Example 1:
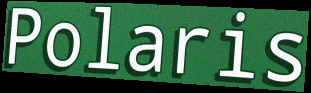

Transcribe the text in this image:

Polaris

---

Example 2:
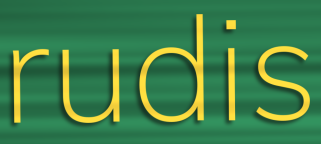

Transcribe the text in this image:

rudis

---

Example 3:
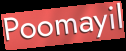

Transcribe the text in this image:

Poomayil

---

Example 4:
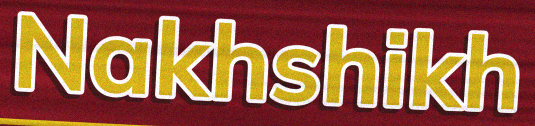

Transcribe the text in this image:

Nakhshikh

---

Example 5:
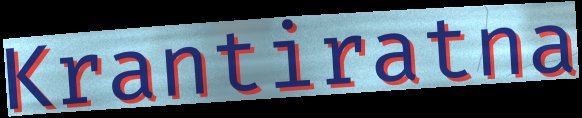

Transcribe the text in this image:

Krantiratna